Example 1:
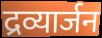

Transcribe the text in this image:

द्रव्यार्जन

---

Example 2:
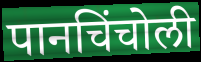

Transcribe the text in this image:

पानचिंचोली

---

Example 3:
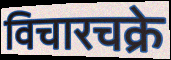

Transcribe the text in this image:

विचारचक्रे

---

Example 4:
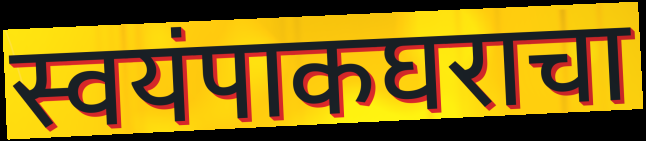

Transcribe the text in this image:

स्वयंपाकघराचा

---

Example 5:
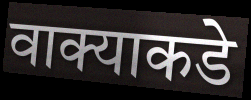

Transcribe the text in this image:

वाक्याकडे